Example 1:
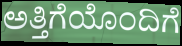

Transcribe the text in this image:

ಅತ್ತಿಗೆಯೊಂದಿಗೆ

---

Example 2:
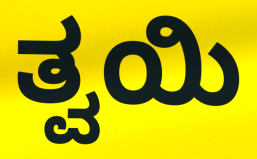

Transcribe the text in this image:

ತ್ವಯಿ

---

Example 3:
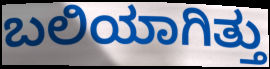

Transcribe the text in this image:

ಬಲಿಯಾಗಿತ್ತು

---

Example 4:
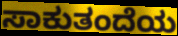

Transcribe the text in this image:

ಸಾಕುತಂದೆಯ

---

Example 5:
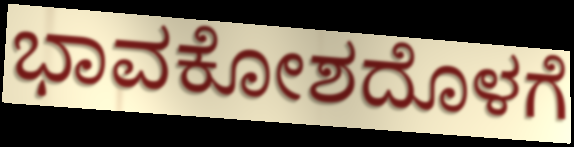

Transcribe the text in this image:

ಭಾವಕೋಶದೊಳಗೆ